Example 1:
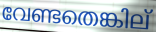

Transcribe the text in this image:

വേണ്ടതെങ്കില്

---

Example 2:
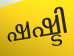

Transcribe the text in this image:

ഷഷ്ടി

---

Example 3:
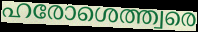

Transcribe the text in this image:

ഹരോശെത്ത്വരെ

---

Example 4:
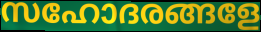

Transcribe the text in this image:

സഹോദരങ്ങളേ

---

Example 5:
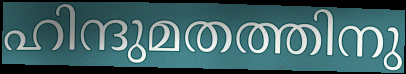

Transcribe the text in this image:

ഹിന്ദുമതത്തിനു